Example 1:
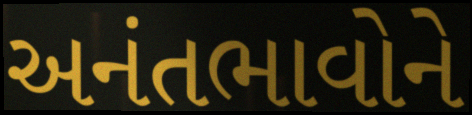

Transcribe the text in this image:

અનંતભાવોને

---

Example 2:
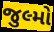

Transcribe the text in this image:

જુલ્મો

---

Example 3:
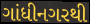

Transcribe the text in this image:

ગાંધીનગરથી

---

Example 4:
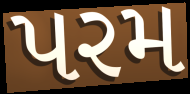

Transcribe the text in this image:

પરમ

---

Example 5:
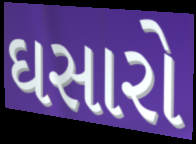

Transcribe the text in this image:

ઘસારો